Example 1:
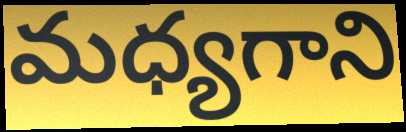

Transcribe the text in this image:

మధ్యగాని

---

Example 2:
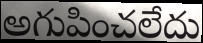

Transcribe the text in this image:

అగుపించలేదు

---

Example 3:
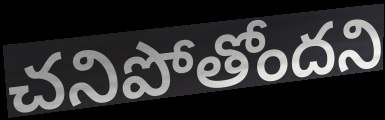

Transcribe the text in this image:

చనిపోతోందని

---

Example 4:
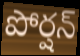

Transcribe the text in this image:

పోర్షన్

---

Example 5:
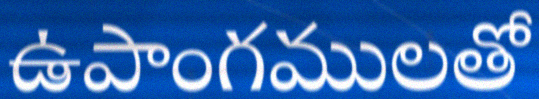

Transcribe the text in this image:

ఉపాంగములతో